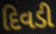
દિવડી